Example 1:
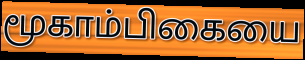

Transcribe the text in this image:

மூகாம்பிகையை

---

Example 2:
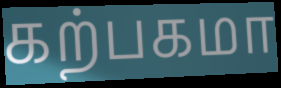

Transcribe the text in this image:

கற்பகமா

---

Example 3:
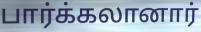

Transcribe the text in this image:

பார்க்கலானார்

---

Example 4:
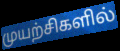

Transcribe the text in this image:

முயற்சிகளில்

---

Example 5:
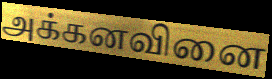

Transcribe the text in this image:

அக்கனவினை